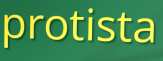
protista